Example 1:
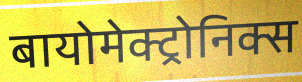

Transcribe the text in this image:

बायोमेक्ट्रोनिक्स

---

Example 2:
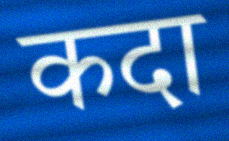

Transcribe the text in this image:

कदा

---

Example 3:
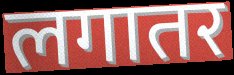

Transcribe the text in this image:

लगातर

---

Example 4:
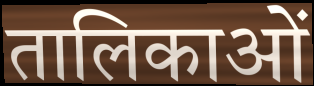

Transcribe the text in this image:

तालिकाओं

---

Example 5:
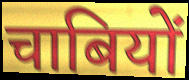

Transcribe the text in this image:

चाबियों